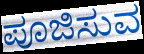
ಪೂಜಿಸುವ